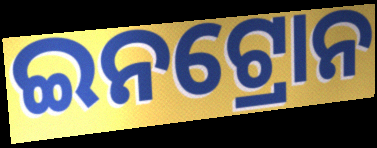
ଇନଟ୍ରୋନ